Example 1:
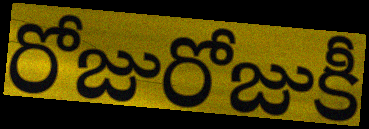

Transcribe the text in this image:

రోజురోజుకీ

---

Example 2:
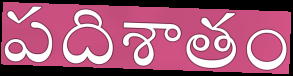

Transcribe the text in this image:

పదిశాతం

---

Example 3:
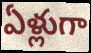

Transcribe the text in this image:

ఏళ్లుగా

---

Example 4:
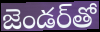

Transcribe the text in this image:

జెండర్‌తో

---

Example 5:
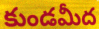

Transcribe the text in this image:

కుండమీద